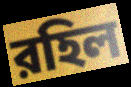
রহিল